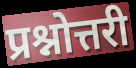
प्रश्नोत्तरी